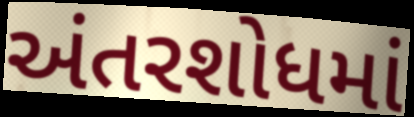
અંતરશોધમાં